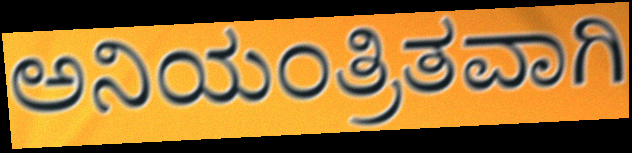
ಅನಿಯಂತ್ರಿತವಾಗಿ